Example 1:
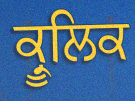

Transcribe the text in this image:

ਕ੍ਰੂਲਿਕ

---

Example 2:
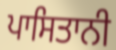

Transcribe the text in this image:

ਪਾਸਿਤਾਨੀ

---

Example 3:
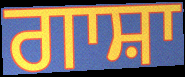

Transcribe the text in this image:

ਗਾਸ਼ਾ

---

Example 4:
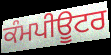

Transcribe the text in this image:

ਕੰਮਪੀਊਟਰ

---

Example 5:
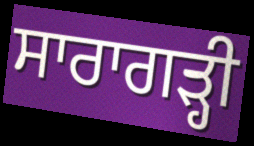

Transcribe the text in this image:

ਸਾਰਾਗੜ੍ਹੀ